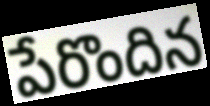
పేరొందిన